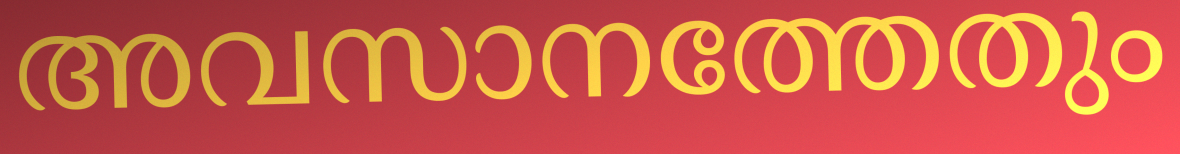
അവസാനത്തേതും